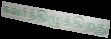
கவர்ந்திழுக்கிறது